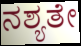
ನಶ್ಯತೇ